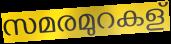
സമരമുറകള്